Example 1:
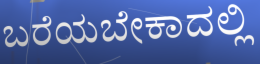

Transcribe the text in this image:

ಬರೆಯಬೇಕಾದಲ್ಲಿ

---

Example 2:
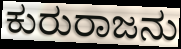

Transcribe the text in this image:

ಕುರುರಾಜನು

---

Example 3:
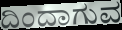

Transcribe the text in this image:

ದಿಂದಾಗುವ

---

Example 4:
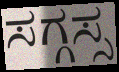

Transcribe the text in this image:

ಸಗ್ಗಸ್ಸ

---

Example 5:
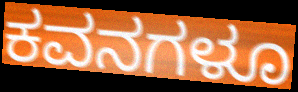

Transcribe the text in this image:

ಕವನಗಳೂ